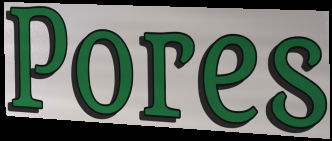
Pores